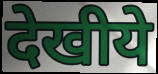
देखीये